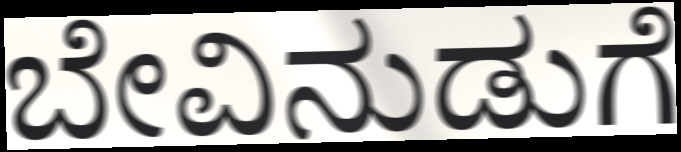
ಬೇವಿನುಡುಗೆ